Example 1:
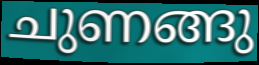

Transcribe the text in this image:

ചുണങ്ങു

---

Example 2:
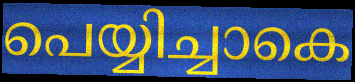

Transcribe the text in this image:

പെയ്യിച്ചാകെ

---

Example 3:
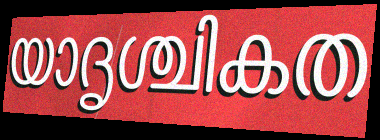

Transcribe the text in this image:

യാദൃശ്ചികത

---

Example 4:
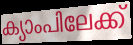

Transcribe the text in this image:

ക്യാംപിലേക്ക്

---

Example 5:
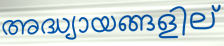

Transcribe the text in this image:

അദ്ധ്യായങ്ങളില്